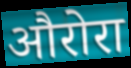
औरोरा